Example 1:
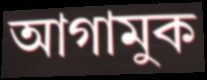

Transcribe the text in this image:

আগামুক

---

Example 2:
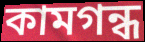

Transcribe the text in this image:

কামগন্ধ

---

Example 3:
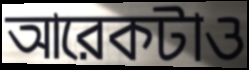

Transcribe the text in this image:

আরেকটাও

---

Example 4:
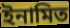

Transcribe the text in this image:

ইনামিত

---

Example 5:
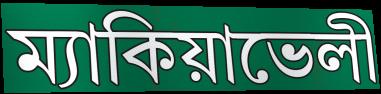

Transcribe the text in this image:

ম্যাকিয়াভেলী